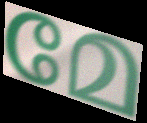
മേ